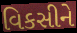
વિકસીને